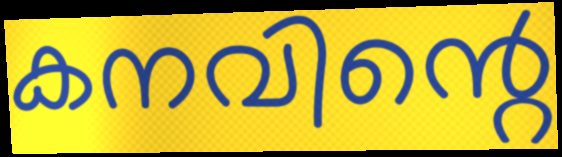
കനവിന്റെ